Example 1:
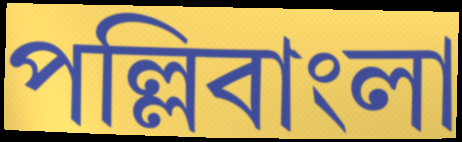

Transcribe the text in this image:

পল্লিবাংলা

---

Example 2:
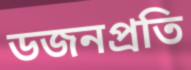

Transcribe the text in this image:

ডজনপ্রতি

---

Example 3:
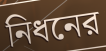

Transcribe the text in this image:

নিধনের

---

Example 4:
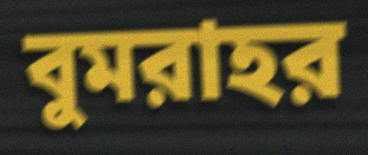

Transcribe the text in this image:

বুমরাহর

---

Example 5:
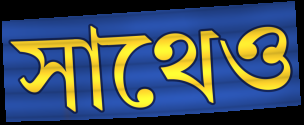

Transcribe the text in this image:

সাথেও